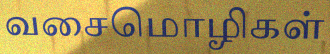
வசைமொழிகள்